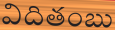
విదితంబు